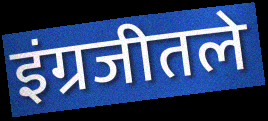
इंग्रजीतले